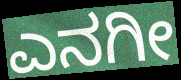
ಎನಗೀ